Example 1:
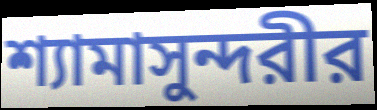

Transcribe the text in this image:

শ্যামাসুন্দরীর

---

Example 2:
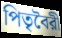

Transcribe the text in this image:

পিতৃবৈরী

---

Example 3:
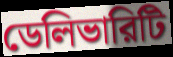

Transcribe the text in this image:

ডেলিভারিটি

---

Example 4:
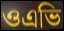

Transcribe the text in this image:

ওএভি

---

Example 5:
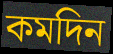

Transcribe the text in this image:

কমদিন